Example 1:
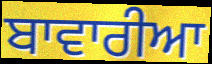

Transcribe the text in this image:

ਬਾਵਾਰੀਆ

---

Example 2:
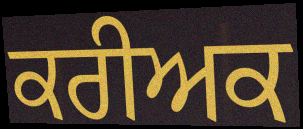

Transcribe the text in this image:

ਕਰੀਅਕ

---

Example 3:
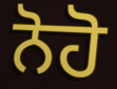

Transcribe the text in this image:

ਨੋਹੋ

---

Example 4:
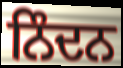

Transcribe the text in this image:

ਨਿੰਦਨ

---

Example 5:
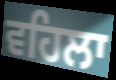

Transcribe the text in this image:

ਵਹਿਲਾ